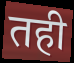
तही